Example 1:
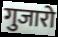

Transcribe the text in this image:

गुजारो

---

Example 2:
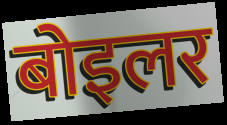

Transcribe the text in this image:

बोइलर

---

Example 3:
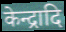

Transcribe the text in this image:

केन्द्रादि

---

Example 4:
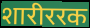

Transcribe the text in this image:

शारीररक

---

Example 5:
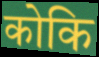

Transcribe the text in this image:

कोकि